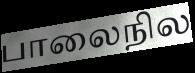
பாலைநில